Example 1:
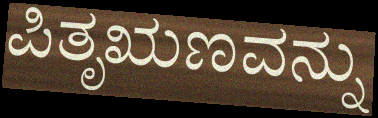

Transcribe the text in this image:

ಪಿತೃಋಣವನ್ನು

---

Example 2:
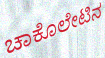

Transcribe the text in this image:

ಚಾಕೊಲೇಟಿನ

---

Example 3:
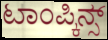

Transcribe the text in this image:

ಟಾಂಪ್ಕಿನ್ಸ್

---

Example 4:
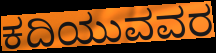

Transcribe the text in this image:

ಕದಿಯುವವರ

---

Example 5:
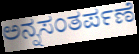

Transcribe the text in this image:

ಅನ್ನಸಂತರ್ಪಣೆ